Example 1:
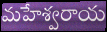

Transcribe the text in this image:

మహేశ్వరాయ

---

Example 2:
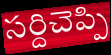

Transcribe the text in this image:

సర్దిచెప్పి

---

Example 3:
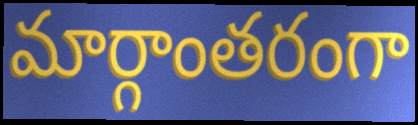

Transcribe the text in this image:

మార్గాంతరంగా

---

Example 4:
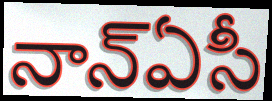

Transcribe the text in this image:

నాన్ఏసీ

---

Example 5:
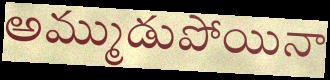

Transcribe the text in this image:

అమ్ముడుపోయినా